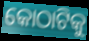
କୋଠାଟିକୁ